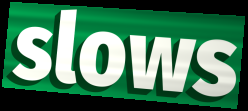
slows